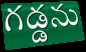
గడ్డను